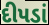
દીપડાં